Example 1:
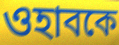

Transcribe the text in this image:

ওহাবকে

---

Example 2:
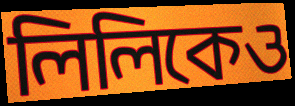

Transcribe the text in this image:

লিলিকেও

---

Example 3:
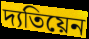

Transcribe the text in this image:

দ্যতিয়েন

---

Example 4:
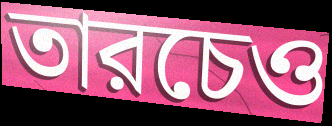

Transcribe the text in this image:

তারচেও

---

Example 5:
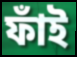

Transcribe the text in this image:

ফাঁই